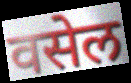
वसेल